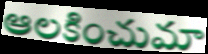
ఆలకించుమా